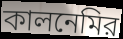
কালনেমির